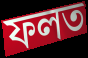
ফলত